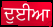
ਦੁਈਆ